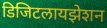
डिजिटलायझेशन